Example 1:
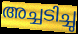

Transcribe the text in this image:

അച്ചടിച്ചു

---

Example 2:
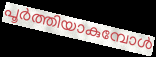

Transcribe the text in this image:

പൂർത്തിയാകുമ്പോൾ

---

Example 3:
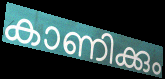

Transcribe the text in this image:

കാണിക്കും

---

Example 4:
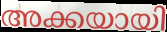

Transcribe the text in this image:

അക്കയായി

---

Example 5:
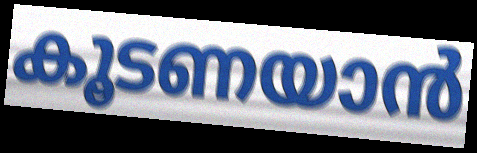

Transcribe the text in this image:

കൂടണയാൻ